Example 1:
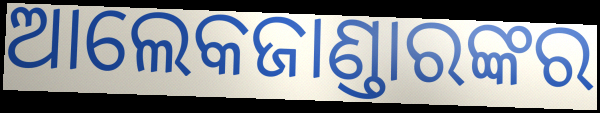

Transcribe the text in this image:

ଆଲେକଜାଣ୍ଡାରଙ୍କର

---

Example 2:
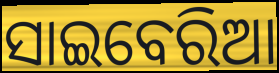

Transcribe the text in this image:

ସାଇବେରିଆ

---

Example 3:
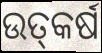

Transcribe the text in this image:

ଉତ୍‌କର୍ଷ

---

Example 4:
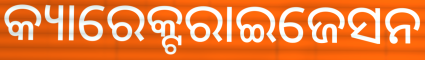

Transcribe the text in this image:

କ୍ୟାରେକ୍ଟରାଇଜେସନ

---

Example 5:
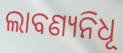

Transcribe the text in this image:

ଲାବଣ୍ୟନିଧୂ